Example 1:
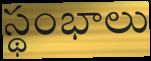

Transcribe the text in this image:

స్థంభాలు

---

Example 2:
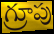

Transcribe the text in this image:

గ్రూపు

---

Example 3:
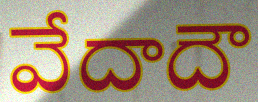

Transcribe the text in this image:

వేదాదౌ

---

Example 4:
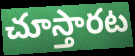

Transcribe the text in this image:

చూస్తారట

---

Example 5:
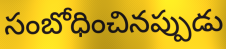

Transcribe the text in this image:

సంబోధించినప్పుడు